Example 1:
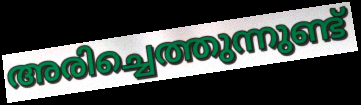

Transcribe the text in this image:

അരിച്ചെത്തുന്നുണ്ട്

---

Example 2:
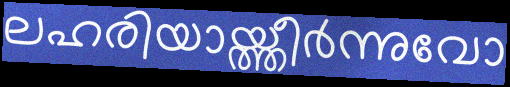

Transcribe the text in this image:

ലഹരിയായ്ത്തീർന്നുവോ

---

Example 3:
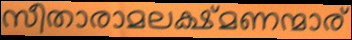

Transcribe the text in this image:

സീതാരാമലക്ഷ്മണന്മാര്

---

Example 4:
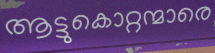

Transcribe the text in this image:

ആട്ടുകൊറ്റന്മാരെ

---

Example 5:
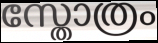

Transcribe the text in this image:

സ്തോത്രം